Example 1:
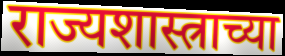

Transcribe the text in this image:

राज्यशास्त्राच्या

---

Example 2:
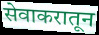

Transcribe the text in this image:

सेवाकरातून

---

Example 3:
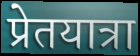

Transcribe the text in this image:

प्रेतयात्रा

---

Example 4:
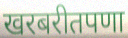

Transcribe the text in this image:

खरबरीतपणा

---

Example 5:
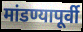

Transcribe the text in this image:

मांडण्यापूर्वी